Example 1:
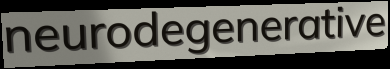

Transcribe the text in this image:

neurodegenerative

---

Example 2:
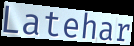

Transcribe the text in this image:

Latehar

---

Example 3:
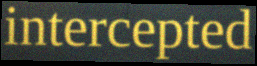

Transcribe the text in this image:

intercepted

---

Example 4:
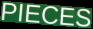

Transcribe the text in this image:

PIECES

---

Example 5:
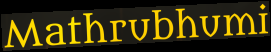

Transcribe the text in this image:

Mathrubhumi